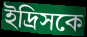
ইদ্রিসকে